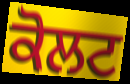
ਕੋਲਟ